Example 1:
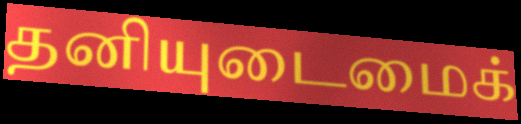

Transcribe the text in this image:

தனியுடைமைக்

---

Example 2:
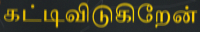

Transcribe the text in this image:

கட்டிவிடுகிறேன்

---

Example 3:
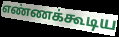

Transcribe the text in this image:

எண்ணக்கூடிய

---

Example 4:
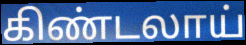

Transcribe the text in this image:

கிண்டலாய்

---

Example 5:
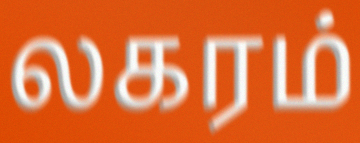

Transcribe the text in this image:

லகரம்